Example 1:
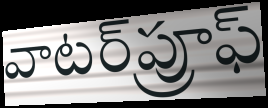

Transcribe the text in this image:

వాటర్‌ప్రూఫ్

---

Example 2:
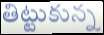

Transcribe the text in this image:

తిట్టుకున్న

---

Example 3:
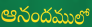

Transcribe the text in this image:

ఆనందములో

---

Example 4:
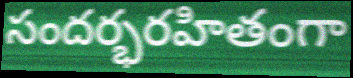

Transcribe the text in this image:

సందర్భరహితంగా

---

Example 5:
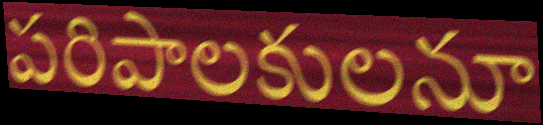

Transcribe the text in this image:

పరిపాలకులనూ